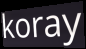
koray